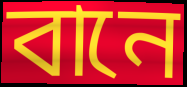
বানে